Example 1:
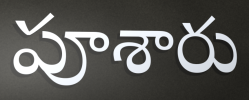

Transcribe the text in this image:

పూశారు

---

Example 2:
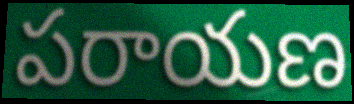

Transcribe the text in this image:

పరాయణ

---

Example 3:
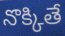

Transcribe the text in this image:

నొక్కితే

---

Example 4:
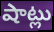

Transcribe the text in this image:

షాట్లు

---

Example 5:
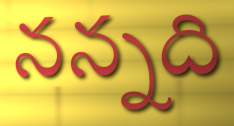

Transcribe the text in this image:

నన్నది